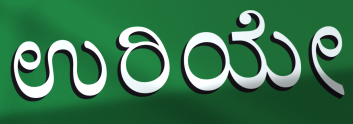
ಉರಿಯೇ